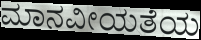
ಮಾನವೀಯತೆಯ